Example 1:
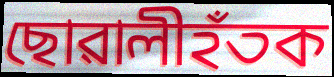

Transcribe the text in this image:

ছোৱালীহঁতক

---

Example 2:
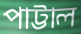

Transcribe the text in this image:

পাট্টাল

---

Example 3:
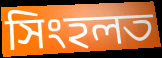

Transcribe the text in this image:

সিংহলত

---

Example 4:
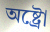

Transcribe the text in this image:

অষ্ট্ৰো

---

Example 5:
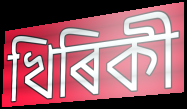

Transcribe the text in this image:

খিৰিকী